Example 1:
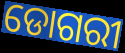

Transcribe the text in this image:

ଡୋଗରୀ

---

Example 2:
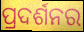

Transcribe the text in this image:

ପ୍ରଦର୍ଶନର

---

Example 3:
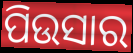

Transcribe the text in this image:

ପିଉସାର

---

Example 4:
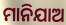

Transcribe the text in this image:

ମାନିଯାଅ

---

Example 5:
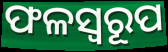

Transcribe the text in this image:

ଫଳସ୍ୱରୂପ